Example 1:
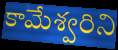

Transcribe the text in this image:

కామేశ్వరిని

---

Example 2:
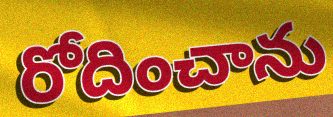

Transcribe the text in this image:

రోదించాను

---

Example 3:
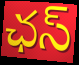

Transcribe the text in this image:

ఛస్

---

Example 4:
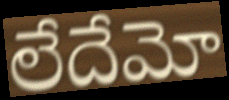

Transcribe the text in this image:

లేదేమో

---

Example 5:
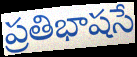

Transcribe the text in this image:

ప్రతిభాషసే